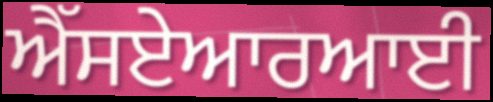
ਐੱਸਏਆਰਆਈ